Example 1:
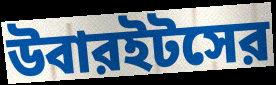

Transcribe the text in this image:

উবারইটসের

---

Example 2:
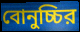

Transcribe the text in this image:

বোনুচ্চির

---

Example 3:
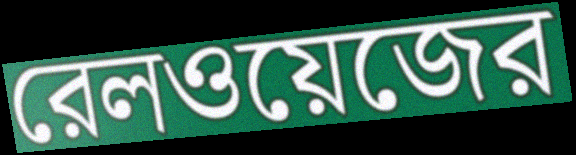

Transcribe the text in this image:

রেলওয়েজের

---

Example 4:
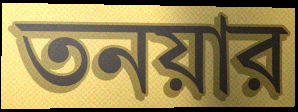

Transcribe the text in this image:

তনয়ার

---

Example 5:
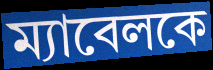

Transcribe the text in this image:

ম্যাবেলকে